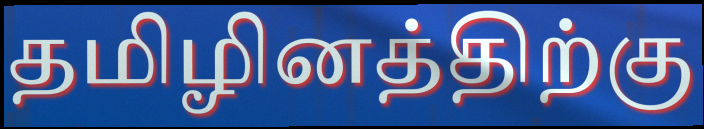
தமிழினத்திற்கு